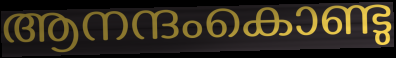
ആനന്ദംകൊണ്ടു